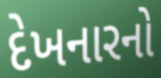
દેખનારનો